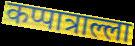
कप्पात्राल्ला